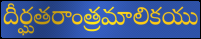
దీర్ఘతరాంత్రమాలికయు